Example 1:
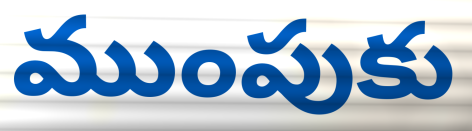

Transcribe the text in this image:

ముంపుకు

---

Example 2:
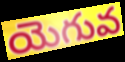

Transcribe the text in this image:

యెగువ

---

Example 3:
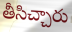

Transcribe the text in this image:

తీసిచ్చారు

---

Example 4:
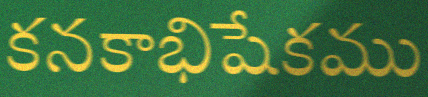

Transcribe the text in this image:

కనకాభిషేకము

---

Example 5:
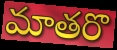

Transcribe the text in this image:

మాతరొ